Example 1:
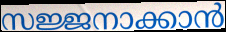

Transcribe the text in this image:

സജ്ജനാക്കാൻ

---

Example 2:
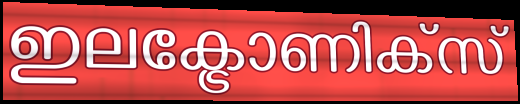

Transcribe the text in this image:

ഇലക്ട്രോണിക്‌സ്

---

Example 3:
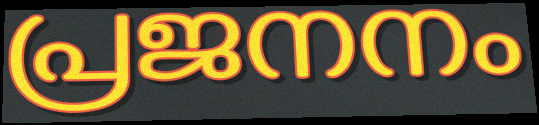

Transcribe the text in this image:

പ്രജനനം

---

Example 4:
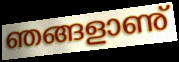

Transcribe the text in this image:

ഞങ്ങളാണു്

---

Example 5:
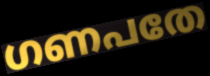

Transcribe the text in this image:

ഗണപതേ